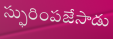
స్ఫురింపజేసాడు